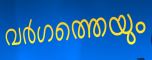
വർഗത്തെയും